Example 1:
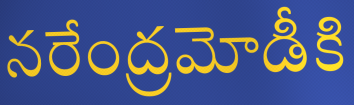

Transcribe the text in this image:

నరేంద్రమోడీకి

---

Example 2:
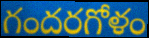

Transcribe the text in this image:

గందరగోళం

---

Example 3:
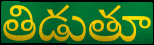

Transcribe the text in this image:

తిడుతూ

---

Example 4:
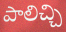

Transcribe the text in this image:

పాలిచ్చి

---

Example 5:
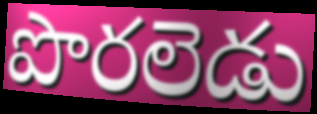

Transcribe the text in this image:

పొరలెడు